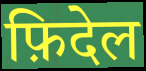
फ़िदेल